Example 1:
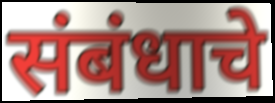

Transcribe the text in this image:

संबंधाचे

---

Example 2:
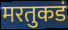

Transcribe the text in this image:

मरतुकडं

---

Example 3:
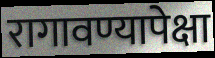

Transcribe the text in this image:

रागावण्यापेक्षा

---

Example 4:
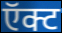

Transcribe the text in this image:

ऍक्ट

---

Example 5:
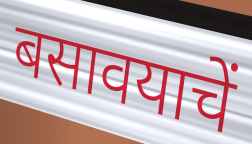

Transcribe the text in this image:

बसावयाचें